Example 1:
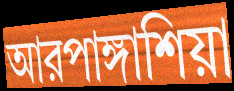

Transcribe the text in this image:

আরপাঙ্গাশিয়া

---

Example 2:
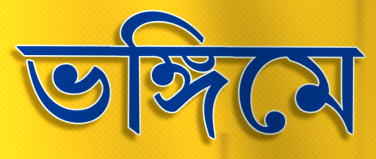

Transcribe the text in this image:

ভঙ্গিমে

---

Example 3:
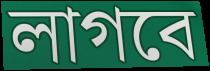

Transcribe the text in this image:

লাগবে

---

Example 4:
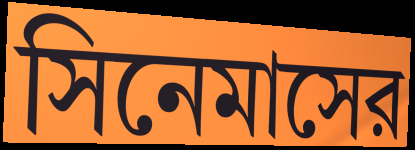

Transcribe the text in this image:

সিনেমাসের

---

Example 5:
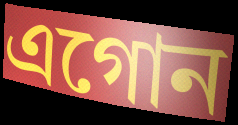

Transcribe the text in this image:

এগোন